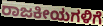
ರಾಜಕೀಯಗಳಿಗೆ